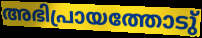
അഭിപ്രായത്തോടു്